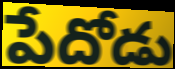
పేదోడు